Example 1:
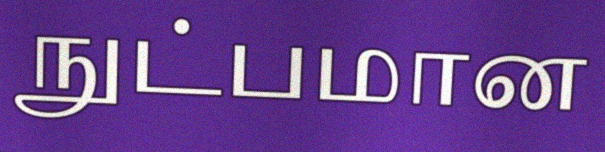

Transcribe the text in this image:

நுட்பமான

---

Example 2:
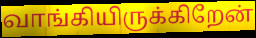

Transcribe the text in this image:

வாங்கியிருக்கிறேன்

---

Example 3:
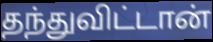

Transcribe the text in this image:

தந்துவிட்டான்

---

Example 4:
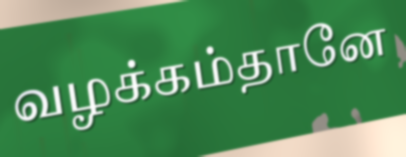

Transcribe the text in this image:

வழக்கம்தானே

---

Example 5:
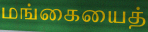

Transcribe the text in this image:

மங்கையைத்